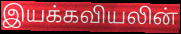
இயக்கவியலின்